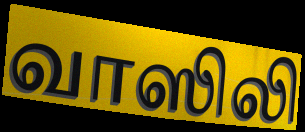
வாஸிலி